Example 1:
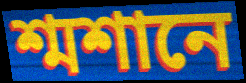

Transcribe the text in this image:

শ্মশানে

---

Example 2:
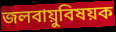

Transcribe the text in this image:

জলবায়ুবিষয়ক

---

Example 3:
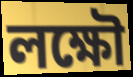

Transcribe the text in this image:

লক্ষৌ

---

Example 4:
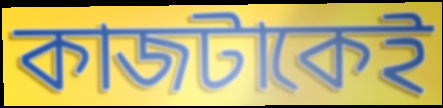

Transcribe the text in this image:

কাজটাকেই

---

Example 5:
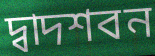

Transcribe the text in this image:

দ্বাদশবন